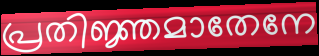
പ്രതിജ്ഞമാതേനേ